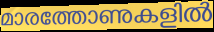
മാരത്തോണുകളിൽ